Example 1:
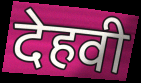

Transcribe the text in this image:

देहवी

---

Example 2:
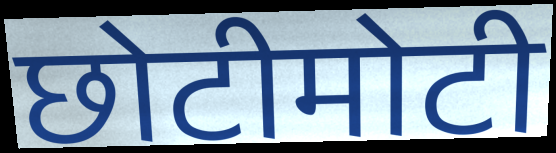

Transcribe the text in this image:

छोटीमोटी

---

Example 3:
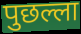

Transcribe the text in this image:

पुछल्ला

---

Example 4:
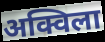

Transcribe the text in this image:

अक्विला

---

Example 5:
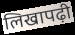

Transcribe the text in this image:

लिखापढ़ी